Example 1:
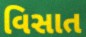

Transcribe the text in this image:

વિસાત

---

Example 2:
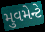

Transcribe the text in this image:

મુવમેન્ટે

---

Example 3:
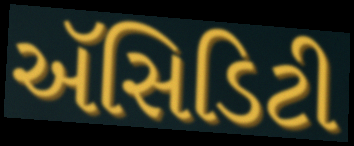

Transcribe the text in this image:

ઍસિડિટી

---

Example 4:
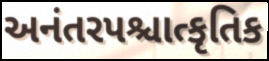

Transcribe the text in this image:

અનંતરપશ્ચાત્કૃતિક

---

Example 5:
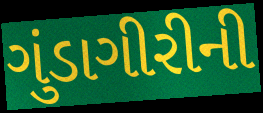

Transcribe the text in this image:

ગુંડાગીરીની